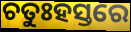
ଚତୁଃହସ୍ତରେ